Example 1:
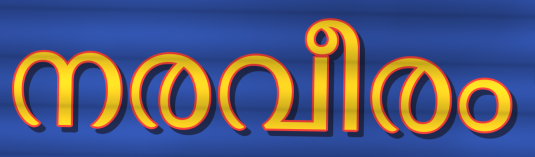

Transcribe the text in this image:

നരവീരം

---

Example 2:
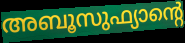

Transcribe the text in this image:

അബൂസുഫ്യാന്റെ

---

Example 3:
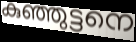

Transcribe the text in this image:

കുഞ്ഞുട്ടനെ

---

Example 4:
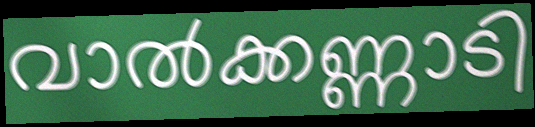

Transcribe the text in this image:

വാൽക്കണ്ണാടി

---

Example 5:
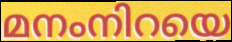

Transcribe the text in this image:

മനംനിറയെ